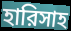
হারিসাহ